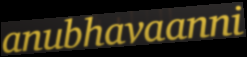
anubhavaanni